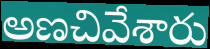
అణచివేశారు